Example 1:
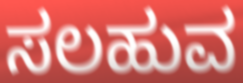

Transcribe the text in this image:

ಸಲಹುವ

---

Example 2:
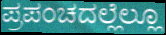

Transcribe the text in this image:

ಪ್ರಪಂಚದಲ್ಲೆಲ್ಲೂ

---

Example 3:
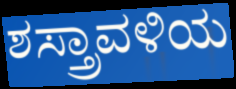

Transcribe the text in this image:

ಶಸ್ತ್ರಾವಳಿಯ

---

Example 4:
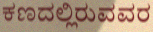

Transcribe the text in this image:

ಕಣದಲ್ಲಿರುವವರ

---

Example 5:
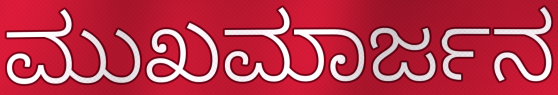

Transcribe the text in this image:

ಮುಖಮಾರ್ಜನ